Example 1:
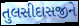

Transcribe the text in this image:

તુલસીદાસજીને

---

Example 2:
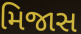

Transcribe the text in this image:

મિજાસ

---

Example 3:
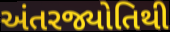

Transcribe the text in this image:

અંતરજ્યોતિથી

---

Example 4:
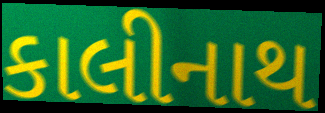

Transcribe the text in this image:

કાલીનાથ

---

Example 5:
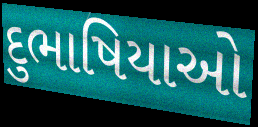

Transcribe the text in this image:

દુભાષિયાઓ